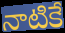
నాటికే